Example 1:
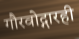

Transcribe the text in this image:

गौरवोद्गारही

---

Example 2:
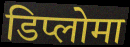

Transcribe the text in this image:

डिप्लोमा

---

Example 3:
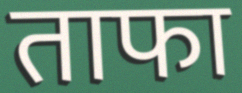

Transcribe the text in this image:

ताफा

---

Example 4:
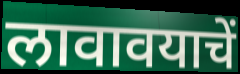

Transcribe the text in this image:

लावावयाचें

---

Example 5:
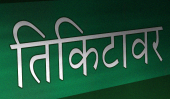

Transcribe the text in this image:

तिकिटावर